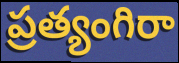
ప్రత్యంగిరా